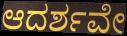
ಆದರ್ಶವೇ